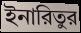
ইনারিতুর